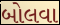
બોલવા